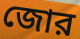
জোর